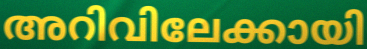
അറിവിലേക്കായി